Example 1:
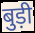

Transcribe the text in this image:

बुड़ी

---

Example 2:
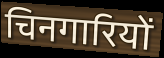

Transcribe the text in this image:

चिनगारियों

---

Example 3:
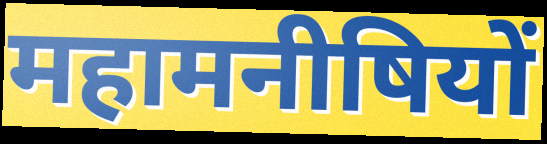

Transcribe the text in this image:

महामनीषियों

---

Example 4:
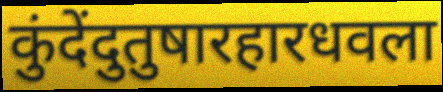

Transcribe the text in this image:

कुंदेंदुतुषारहारधवला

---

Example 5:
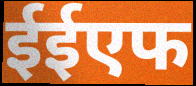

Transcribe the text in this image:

ईईएफ